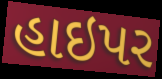
હાઇપર